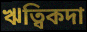
ঋত্বিকদা